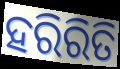
ହରିରିତି